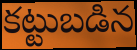
కట్టుబడిన